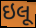
ઇલૂ